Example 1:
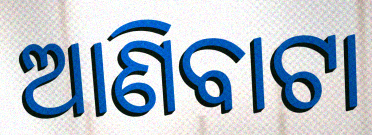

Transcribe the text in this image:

ଆଣିବାଟା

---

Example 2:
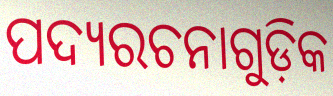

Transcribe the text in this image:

ପଦ୍ୟରଚନାଗୁଡ଼ିକ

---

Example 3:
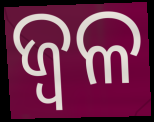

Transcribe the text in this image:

ଜ୍ୱଳ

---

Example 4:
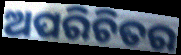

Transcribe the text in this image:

ଅପରିଚିତର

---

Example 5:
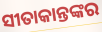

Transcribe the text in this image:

ସୀତାକାନ୍ତଙ୍କର